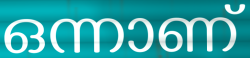
ഒന്നാണ്